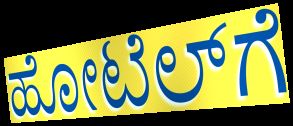
ಹೋಟೆಲ್‌ಗೆ